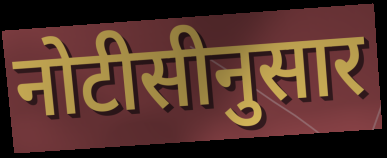
नोटीसीनुसार